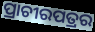
ପ୍ରାଚୀରପତ୍ରର